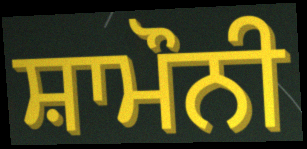
ਸ਼ਾਮੌਨੀ